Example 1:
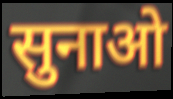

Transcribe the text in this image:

सुनाओ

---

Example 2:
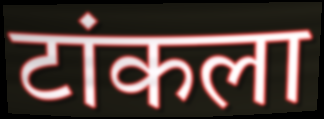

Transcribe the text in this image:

टांकला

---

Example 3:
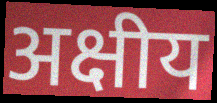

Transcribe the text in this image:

अक्षीय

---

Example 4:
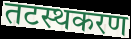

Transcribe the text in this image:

तटस्थकरण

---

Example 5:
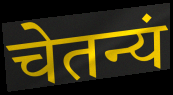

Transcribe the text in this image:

चेतन्यं